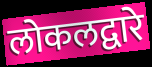
लोकलद्वारे